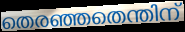
തെരഞ്ഞതെന്തിന്